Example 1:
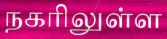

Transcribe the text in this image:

நகரிலுள்ள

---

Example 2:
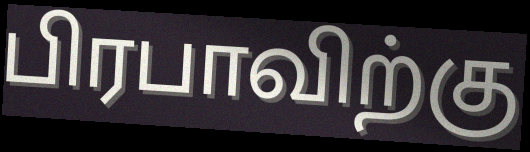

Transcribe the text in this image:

பிரபாவிற்கு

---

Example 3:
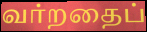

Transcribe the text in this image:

வர்றதைப்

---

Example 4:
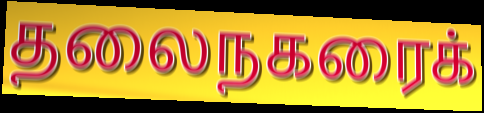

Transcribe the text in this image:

தலைநகரைக்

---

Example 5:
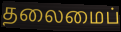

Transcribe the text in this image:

தலைமைப்